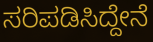
ಸರಿಪಡಿಸಿದ್ದೇನೆ